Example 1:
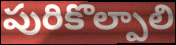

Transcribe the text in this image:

పురికొల్పాలి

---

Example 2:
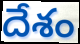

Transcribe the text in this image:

దేశం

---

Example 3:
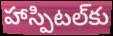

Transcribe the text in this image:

హాస్పిటల్‌కు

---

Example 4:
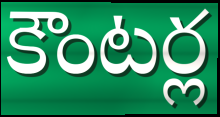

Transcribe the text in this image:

కౌంటర్ల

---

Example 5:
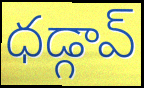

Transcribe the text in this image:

ధడ్గావ్